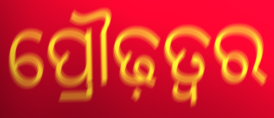
ପ୍ରୌଢ଼ତ୍ୱର